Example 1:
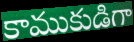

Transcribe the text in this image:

కాముకుడిగా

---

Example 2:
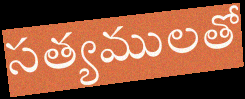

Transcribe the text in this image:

సత్యములతో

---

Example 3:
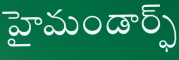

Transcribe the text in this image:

హైమండార్ఫ్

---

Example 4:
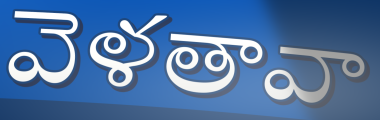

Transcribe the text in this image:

వెళతావా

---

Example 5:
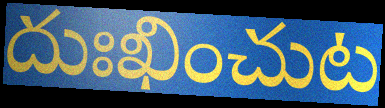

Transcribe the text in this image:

దుఃఖించుట